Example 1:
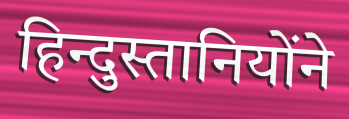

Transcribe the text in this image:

हिन्दुस्तानियोंने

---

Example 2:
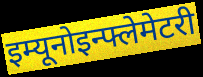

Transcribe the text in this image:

इम्यूनोइन्फ्लेमेटरी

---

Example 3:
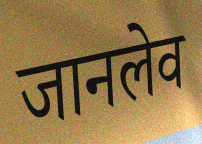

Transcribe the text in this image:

जानलेव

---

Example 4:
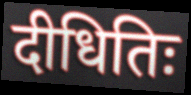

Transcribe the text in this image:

दीधितिः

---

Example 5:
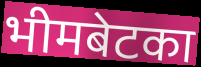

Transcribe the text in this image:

भीमबेटका